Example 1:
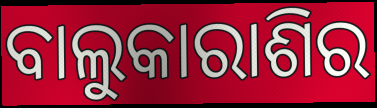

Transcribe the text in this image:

ବାଲୁକାରାଶିର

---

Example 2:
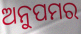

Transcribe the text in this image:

ଅନୁପମର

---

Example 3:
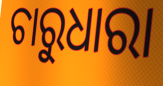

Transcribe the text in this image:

ଚାରୁଧାରା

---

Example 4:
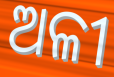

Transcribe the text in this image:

ଅଳୀ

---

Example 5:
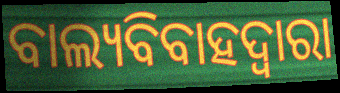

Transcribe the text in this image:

ବାଲ୍ୟବିବାହଦ୍ୱାରା